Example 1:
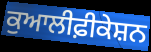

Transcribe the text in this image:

ਕੁਆਲੀਫ਼ੀਕੇਸ਼ਨ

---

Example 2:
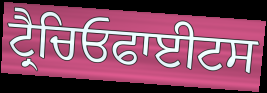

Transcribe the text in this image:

ਟ੍ਰੈਚਿਓਫਾਈਟਸ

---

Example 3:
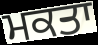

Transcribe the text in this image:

ਮਕਤਾ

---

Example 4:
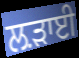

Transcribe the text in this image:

ਲ਼ੜਾਈ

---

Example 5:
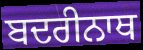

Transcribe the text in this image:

ਬਦਰੀਨਾਥ